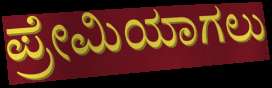
ಪ್ರೇಮಿಯಾಗಲು